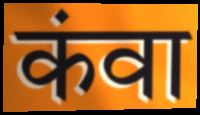
कंवा